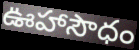
ఊహాసౌధం